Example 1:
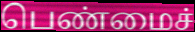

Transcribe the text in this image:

பெண்மைச்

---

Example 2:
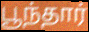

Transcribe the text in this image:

பூந்தார்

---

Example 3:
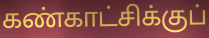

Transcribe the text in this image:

கண்காட்சிக்குப்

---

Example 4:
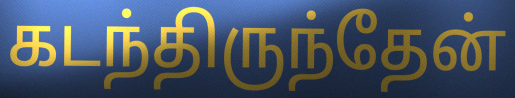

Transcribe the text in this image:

கடந்திருந்தேன்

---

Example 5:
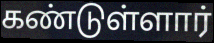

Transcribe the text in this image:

கண்டுள்ளார்